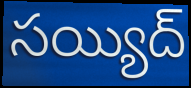
సయ్యిద్